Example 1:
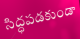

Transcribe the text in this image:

సిద్ధపడకుండా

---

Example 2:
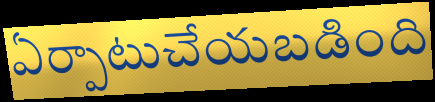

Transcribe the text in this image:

ఏర్పాటుచేయబడింది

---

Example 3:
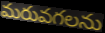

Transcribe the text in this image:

మరువగలను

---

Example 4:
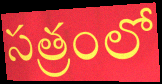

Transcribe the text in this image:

సత్రంలో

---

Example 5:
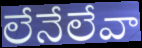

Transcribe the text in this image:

లేనేలేవా